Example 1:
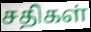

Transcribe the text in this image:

சதிகள்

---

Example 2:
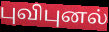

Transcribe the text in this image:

புவிபுனல்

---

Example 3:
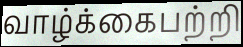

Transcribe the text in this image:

வாழ்க்கைபற்றி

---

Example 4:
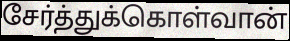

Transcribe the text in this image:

சேர்த்துக்கொள்வான்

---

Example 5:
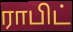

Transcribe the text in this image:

ராபிட்